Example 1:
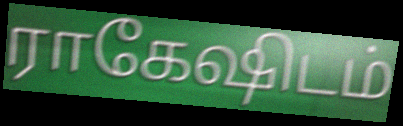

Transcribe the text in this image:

ராகேஷிடம்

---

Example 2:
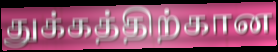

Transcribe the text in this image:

துக்கத்திற்கான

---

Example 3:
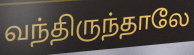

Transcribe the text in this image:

வந்திருந்தாலே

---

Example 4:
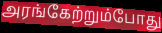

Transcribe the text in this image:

அரங்கேற்றும்போது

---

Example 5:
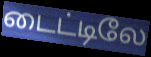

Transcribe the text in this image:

டைட்டிலே